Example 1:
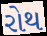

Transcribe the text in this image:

રોથ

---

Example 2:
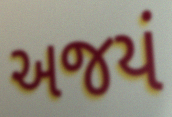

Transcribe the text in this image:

અજયં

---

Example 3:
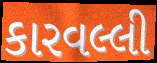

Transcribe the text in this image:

કારવલ્લી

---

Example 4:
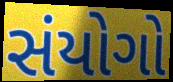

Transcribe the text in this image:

સંયોગો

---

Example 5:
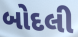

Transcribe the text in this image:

બોદલી